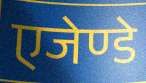
एजेण्डे